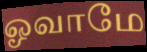
ஓவாமே